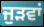
ਜੁੜਵਾਂ